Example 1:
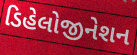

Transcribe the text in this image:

ડિહેલોજીનેશન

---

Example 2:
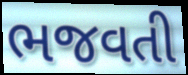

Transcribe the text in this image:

ભજવતી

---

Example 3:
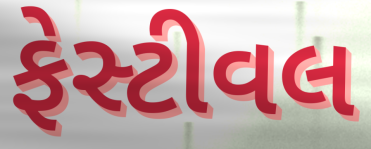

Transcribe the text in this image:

ફેસ્ટીવલ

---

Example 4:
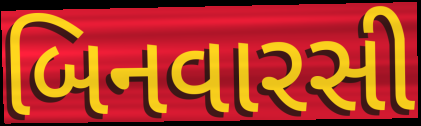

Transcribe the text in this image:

બિનવારસી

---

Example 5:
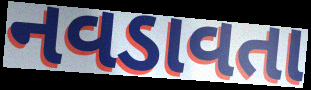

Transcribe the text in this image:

નવડાવતા